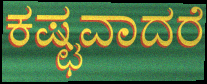
ಕಷ್ಟವಾದರೆ